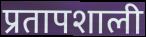
प्रतापशाली